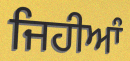
ਜਿਹੀਆੰ